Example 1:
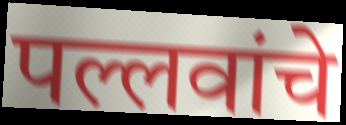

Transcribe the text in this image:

पल्लवांचे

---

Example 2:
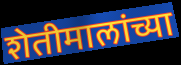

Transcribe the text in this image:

शेतीमालांच्या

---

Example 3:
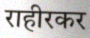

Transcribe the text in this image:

राहीरकर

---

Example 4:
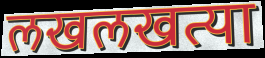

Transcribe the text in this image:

लखलखत्या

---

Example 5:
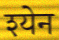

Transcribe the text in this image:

श्येन